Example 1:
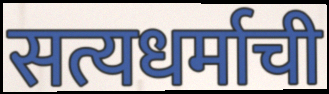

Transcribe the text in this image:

सत्यधर्माची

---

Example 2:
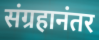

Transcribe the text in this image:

संग्रहानंतर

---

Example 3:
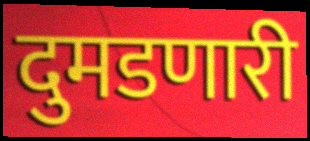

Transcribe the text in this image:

दुमडणारी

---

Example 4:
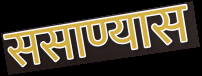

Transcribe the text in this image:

ससाण्यास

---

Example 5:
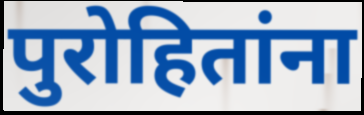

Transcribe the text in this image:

पुरोहितांना